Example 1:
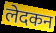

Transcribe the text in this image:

लेदकन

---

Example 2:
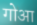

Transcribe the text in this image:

गोआ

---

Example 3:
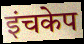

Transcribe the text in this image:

इंचकेप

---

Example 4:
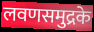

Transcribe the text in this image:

लवणसमुद्रके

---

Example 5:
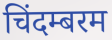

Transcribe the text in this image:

चिंदम्बरम